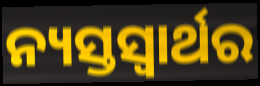
ନ୍ୟସ୍ତସ୍ୱାର୍ଥର